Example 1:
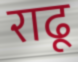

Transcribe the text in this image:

राढू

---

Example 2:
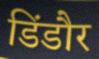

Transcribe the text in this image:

डिंडौर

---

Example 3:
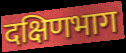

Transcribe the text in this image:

दक्षिणभाग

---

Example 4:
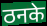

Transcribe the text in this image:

ठनके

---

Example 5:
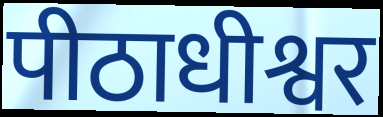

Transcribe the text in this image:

पीठाधीश्वर